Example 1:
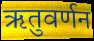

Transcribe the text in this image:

ऋतुवर्णन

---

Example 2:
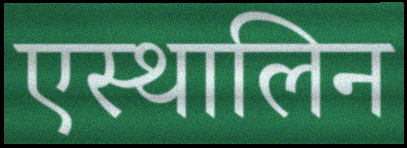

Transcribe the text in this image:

एस्थालिन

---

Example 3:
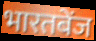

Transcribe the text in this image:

भारतबेंज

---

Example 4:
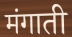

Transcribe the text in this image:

मंगाती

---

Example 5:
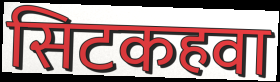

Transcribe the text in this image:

सिटकहवा